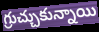
గ్రుచ్చుకున్నాయి